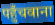
पहुँचवाना